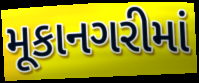
મૂકાનગરીમાં